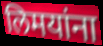
लिमयांना